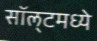
सॉल्टमध्ये